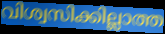
വിശ്വസിക്കില്ലാത്ത